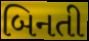
બિનતી